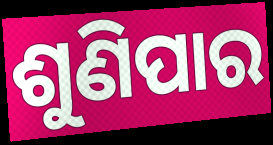
ଶୁଣିପାର